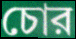
চোর